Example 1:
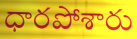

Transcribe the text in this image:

ధారపోశారు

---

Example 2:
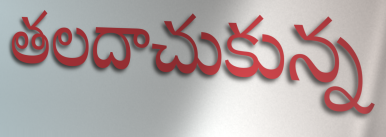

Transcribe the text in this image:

తలదాచుకున్న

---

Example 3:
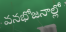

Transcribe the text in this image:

వనభోజనాల్లో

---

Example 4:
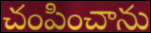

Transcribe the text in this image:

చంపించాను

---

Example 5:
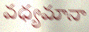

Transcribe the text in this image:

వధ్యమానా